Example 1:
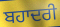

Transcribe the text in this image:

ਬਹਾਦਰੀ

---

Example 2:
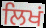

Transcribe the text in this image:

ਲਿਖਂ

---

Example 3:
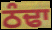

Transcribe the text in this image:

ਠੰਢਾ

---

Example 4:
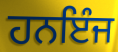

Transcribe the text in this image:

ਹਨਇੰਜ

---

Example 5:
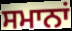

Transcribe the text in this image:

ਸਮਾਨਾਂ